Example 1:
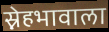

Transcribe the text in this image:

स्नेहभावाला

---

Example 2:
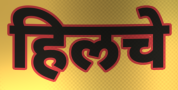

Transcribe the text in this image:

हिलचे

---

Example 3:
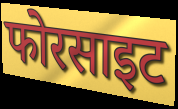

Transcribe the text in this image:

फोरसाइट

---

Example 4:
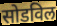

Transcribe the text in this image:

सोडविल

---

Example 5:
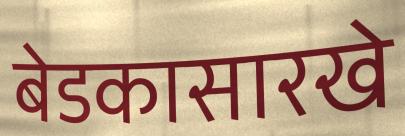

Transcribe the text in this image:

बेडकासारखे